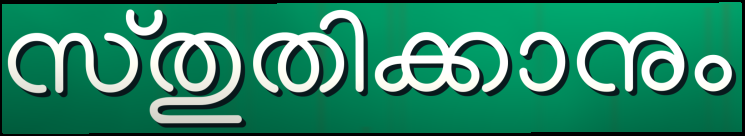
സ്തുതിക്കാനും